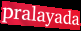
pralayada